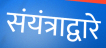
संयंत्राद्वारे